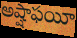
అష్షాఫయీ